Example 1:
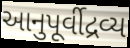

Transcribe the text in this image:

આનુપૂર્વીદ્રવ્ય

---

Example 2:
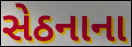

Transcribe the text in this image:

સેઠનાના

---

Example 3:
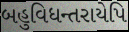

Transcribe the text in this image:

બહુવિધન્તરાયેપિ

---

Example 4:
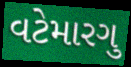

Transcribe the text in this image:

વટેમારગુ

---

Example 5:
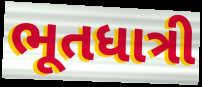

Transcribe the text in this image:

ભૂતધાત્રી